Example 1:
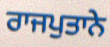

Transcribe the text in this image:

ਰਾਜਪੁਤਾਨੇ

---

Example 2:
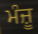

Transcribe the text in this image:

ਮੰਜ਼ੂ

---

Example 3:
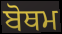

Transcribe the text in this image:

ਬੋਥਮ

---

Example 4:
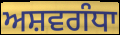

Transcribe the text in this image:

ਅਸ਼ਵਗੰਧਾ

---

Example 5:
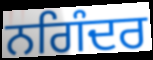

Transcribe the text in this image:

ਨਗਿੰਦਰ